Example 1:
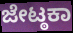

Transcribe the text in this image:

ಜೇಟ್ಠಕಾ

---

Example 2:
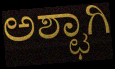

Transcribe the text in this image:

ಅಶ್ಟಾಗಿ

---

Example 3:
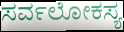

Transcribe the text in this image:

ಸರ್ವಲೋಕಸ್ಯ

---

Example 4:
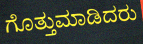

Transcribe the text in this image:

ಗೊತ್ತುಮಾಡಿದರು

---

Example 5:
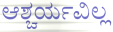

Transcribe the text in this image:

ಆಶ್ಚರ್ಯವಿಲ್ಲ